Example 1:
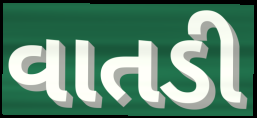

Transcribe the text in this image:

વાતડી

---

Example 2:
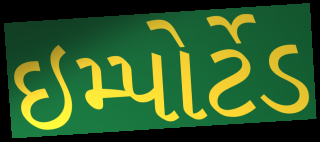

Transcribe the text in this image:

ઇમ્પોર્ટેડ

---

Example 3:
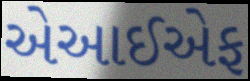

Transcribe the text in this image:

એઆઈએફ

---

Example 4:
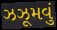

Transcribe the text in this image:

ઝઝૂમવું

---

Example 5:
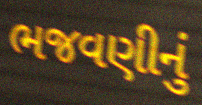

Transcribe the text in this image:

ભજવણીનું